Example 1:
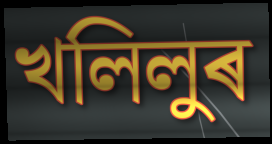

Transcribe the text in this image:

খলিলুৰ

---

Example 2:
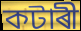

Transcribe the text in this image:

কটাৰী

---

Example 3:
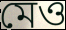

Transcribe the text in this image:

মেও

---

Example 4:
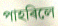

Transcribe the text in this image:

পাহৰিলে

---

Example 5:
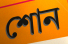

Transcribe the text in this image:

শোন